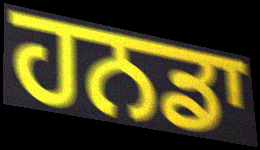
ਹਨਡਾ